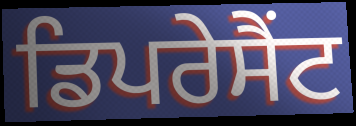
ਡਿਪਰੇਸੈਂਟ